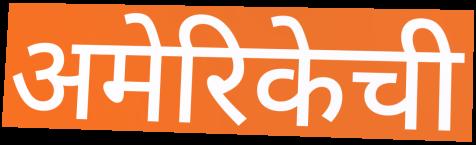
अमेरिकेची